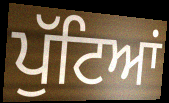
ਪੁੱਟਿਆਂ